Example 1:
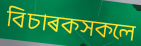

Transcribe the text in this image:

বিচাৰকসকলে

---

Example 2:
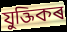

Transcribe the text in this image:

যুক্তিকৰ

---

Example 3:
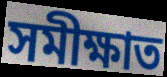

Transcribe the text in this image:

সমীক্ষাত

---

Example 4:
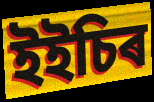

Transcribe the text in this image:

ইইচিৰ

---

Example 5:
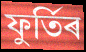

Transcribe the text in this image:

ফুৰ্তিৰ